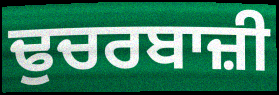
ਢੁਚਰਬਾਜ਼ੀ